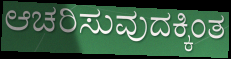
ಆಚರಿಸುವುದಕ್ಕಿಂತ